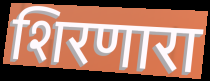
शिरणारा